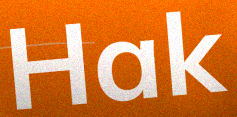
Hak